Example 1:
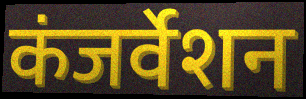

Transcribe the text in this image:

कंजर्वेशन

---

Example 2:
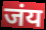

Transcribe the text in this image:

जंय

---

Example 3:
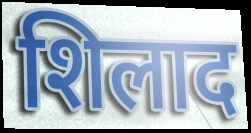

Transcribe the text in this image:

शिलाद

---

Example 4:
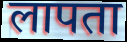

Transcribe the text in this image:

लापता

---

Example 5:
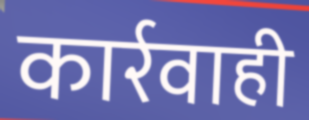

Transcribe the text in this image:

कार्रवाही